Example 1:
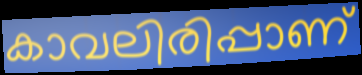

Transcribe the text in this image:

കാവലിരിപ്പാണ്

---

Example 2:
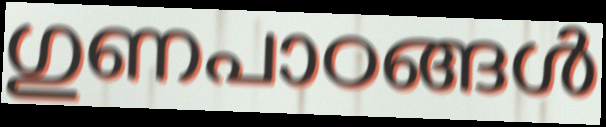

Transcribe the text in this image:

ഗുണപാഠങ്ങൾ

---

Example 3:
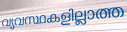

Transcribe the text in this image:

വ്യവസ്ഥകളില്ലാത്ത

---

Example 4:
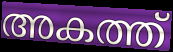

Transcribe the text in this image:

അകത്ത്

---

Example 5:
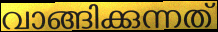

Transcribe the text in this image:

വാങ്ങിക്കുന്നത്